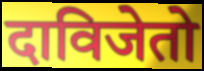
दाविजेतो